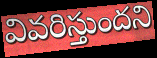
వివరిస్తుందని